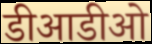
डीआडीओ